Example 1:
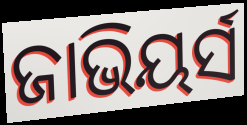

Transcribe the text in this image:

ଜାଭିୟର୍ସ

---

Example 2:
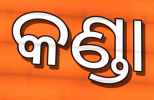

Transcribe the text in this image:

କଣ୍ଡା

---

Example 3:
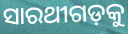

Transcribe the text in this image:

ସାରଥୀଗଡ଼କୁ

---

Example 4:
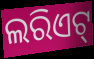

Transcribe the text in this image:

ଲରିଏଟ୍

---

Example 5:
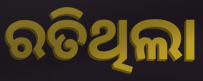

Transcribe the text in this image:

ରତିଥିଲା